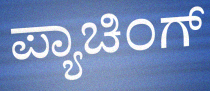
ಪ್ಯಾಚಿಂಗ್